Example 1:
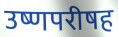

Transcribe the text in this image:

उष्णपरीषह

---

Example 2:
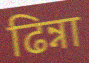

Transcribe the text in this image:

ढिन्ना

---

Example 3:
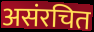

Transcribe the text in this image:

असंरचित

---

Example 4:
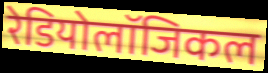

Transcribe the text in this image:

रेडियोलॉजिकल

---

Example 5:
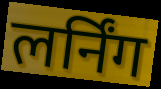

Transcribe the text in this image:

लर्निंग